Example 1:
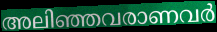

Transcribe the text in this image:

അലിഞ്ഞവരാണവർ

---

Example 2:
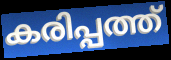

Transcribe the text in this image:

കരിപ്പത്ത്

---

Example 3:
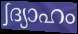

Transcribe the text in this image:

ഽദ്യാഹം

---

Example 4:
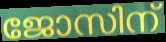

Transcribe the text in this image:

ജോസിന്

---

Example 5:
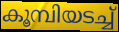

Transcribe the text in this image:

കൂമ്പിയടച്ച്